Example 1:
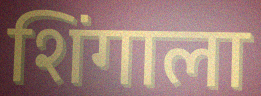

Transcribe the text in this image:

शिंगाला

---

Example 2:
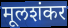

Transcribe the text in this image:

मूलशंकर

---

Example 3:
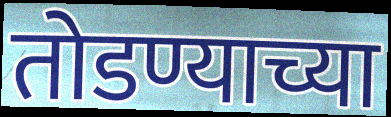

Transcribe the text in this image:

तोडण्याच्या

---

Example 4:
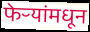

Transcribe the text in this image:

फेऱ्यांमधून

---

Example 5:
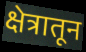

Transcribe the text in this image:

क्षेत्रातून